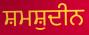
ਸ਼ਮਸ਼ੁਦੀਨ